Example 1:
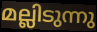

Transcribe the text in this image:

മല്ലിടുന്നു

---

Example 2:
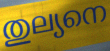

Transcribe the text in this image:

തുല്യനെ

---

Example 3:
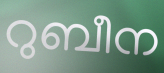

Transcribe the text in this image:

റുബീന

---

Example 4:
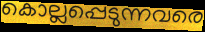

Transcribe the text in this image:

കൊല്ലപ്പെടുന്നവരെ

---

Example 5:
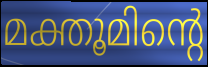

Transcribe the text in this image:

മക്തൂമിന്റെ